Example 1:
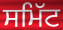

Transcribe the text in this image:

ਸਮਿੱਟ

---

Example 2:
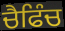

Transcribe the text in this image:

ਚੈਫਿੰਚ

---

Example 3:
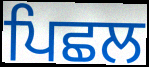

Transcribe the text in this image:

ਪਿਛਲ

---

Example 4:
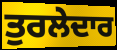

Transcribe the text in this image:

ਤੁਰਲੇਦਾਰ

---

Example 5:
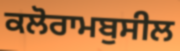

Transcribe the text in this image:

ਕਲੋਰਾਮਬੁਸੀਲ